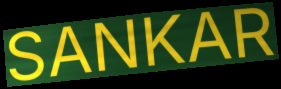
SANKAR